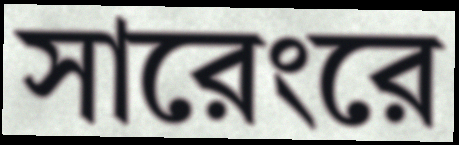
সারেংরে